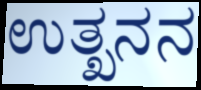
ಉತ್ಖನನ